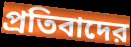
প্রতিবাদের